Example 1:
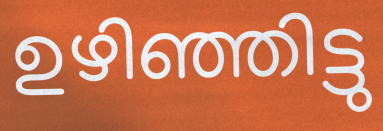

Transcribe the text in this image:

ഉഴിഞ്ഞിട്ടു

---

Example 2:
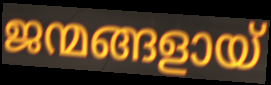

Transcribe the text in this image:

ജന്മങ്ങളായ്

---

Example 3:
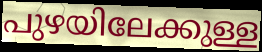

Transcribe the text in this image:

പുഴയിലേക്കുള്ള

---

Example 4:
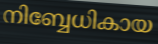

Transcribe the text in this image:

നിബ്ബേധികായ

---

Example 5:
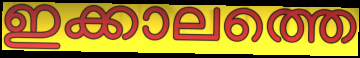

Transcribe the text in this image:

ഇക്കാലത്തെ